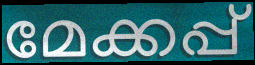
മേക്കപ്പ്